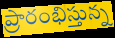
ప్రారంభిస్తున్న